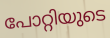
പോറ്റിയുടെ